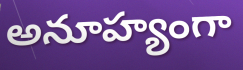
అనూహ్యంగా